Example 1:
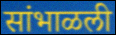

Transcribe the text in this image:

सांभाळली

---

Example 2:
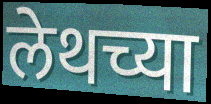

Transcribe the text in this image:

लेथच्या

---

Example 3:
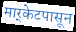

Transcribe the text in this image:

मार्केटपासून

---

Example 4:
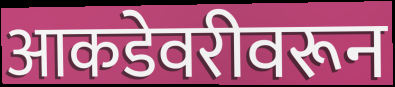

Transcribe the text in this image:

आकडेवरीवरून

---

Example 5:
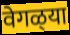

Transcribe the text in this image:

वेगळ्‌या